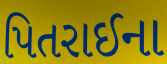
પિતરાઈના